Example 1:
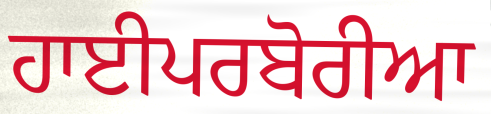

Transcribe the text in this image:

ਹਾਈਪਰਬੋਰੀਆ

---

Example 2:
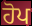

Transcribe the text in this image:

ਹੋਪ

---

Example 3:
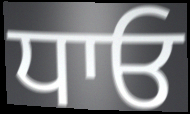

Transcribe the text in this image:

ਧਾਓ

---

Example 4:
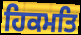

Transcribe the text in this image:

ਹਿਕਮਤਿ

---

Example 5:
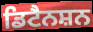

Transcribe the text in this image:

ਡਿਟੈਨਸ਼ਨ